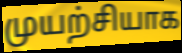
முயற்சியாக